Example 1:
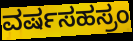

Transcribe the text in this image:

ವರ್ಷಸಹಸ್ರಂ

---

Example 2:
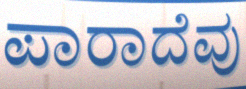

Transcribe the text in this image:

ಪಾರಾದೆವು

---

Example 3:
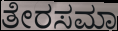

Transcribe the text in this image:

ತೇರಸಮಾ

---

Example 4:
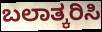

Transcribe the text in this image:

ಬಲಾತ್ಕರಿಸಿ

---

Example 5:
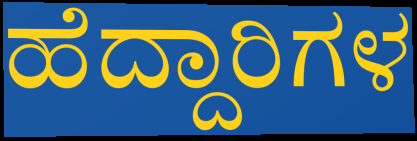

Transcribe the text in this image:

ಹೆದ್ದಾರಿಗಳ